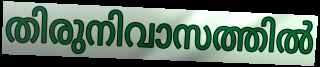
തിരുനിവാസത്തിൽ